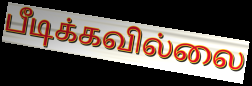
பீடிக்கவில்லை